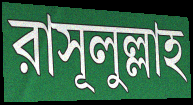
রাসূলুল্লাহ